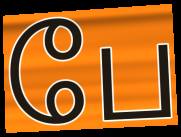
பே